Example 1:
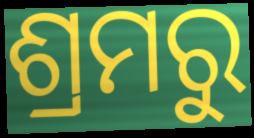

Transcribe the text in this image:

ଶ୍ରମରୁ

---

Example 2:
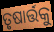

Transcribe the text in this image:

ତୃଷାର୍ତ୍ତକୁ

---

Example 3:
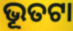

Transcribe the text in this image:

ଭୂତଟା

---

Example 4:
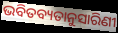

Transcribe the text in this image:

ଭବିତବ୍ୟତାନୁସାରିଣୀ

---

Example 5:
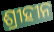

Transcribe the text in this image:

ଶ୍ରୀହୀନ